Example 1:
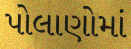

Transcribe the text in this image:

પોલાણોમાં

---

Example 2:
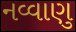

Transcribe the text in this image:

નવ્વાણુ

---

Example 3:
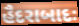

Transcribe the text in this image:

હૈદરાબાદઃ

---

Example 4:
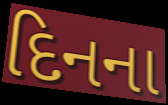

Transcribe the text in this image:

દિનના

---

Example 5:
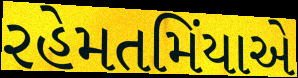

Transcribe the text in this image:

રહેમતમિંયાએ